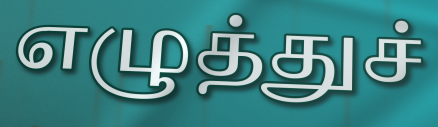
எழுத்துச்